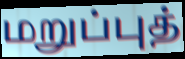
மறுப்புத்